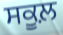
ਸਕੂਲ਼